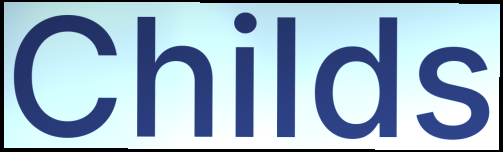
Childs